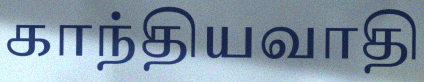
காந்தியவாதி